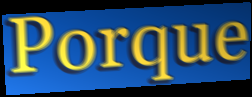
Porque